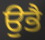
ਉਭੈ